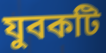
যুবকটি